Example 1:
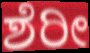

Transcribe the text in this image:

ಶೆರೀ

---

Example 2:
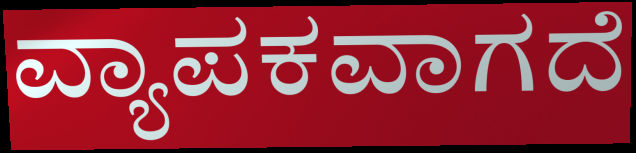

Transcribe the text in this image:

ವ್ಯಾಪಕವಾಗದೆ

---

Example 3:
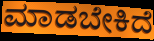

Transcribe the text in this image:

ಮಾಡಬೇಕಿದೆ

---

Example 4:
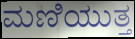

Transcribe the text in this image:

ಮಣಿಯುತ್ತ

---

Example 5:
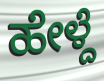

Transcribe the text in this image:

ಹೇಳ್ದೆ